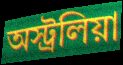
অস্ট্রলিয়া